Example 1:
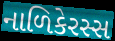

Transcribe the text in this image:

નાળિકેરસ્સ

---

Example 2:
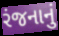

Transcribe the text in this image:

રંજનાનું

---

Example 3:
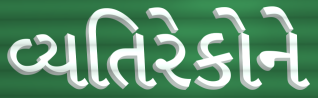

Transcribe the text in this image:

વ્યતિરેકોને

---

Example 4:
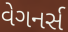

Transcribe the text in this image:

વેગનર્સ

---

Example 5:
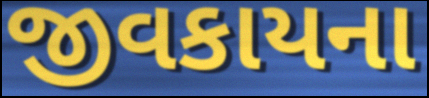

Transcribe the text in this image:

જીવકાયના